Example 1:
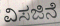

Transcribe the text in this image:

ವಿಸಜಿನೆ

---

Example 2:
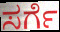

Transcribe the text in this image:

ಸರ್ಗೆ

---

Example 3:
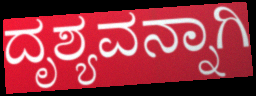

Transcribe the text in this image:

ದೃಶ್ಯವನ್ನಾಗಿ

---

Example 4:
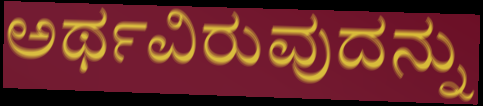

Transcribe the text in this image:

ಅರ್ಥವಿರುವುದನ್ನು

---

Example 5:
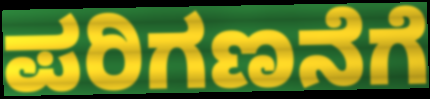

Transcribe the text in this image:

ಪರಿಗಣನೆಗೆ